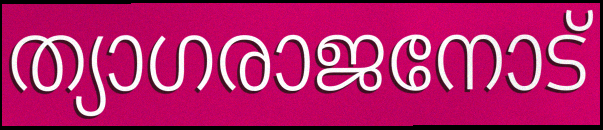
ത്യാഗരാജനോട്